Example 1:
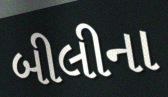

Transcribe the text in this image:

બીલીના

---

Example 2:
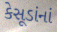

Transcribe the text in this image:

કેસૂડાંનાં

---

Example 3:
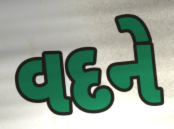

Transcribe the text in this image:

વદને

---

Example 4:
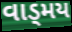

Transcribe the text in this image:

વાડ્મય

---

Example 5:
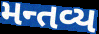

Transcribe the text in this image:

મન્તવ્ય